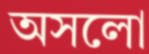
অসলো